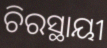
ଚିରସ୍ଥାୟୀ